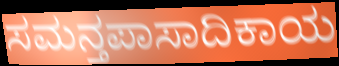
ಸಮನ್ತಪಾಸಾದಿಕಾಯ